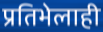
प्रतिभेलाही